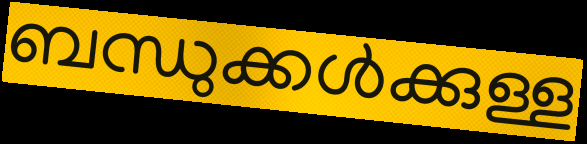
ബന്ധുക്കൾക്കുള്ള